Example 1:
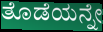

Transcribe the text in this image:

ತೊಡೆಯನ್ನೇ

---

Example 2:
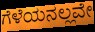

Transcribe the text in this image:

ಗೆಳೆಯನಲ್ಲವೇ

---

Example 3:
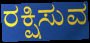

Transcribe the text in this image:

ರಕ್ಷಿಸುವ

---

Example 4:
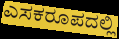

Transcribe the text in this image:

ಎಸಕರೂಪದಲ್ಲಿ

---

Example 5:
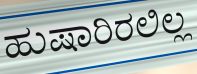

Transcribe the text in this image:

ಹುಷಾರಿರಲಿಲ್ಲ